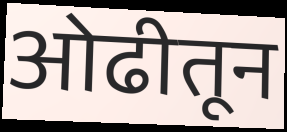
ओढीतून